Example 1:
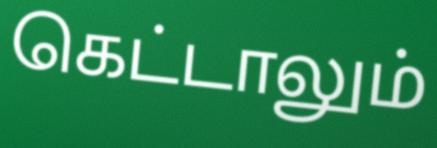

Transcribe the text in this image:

கெட்டாலும்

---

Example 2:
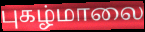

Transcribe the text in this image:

புகழ்மாலை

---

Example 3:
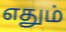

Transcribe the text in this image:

எதும்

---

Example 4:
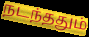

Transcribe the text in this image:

நடந்ததும்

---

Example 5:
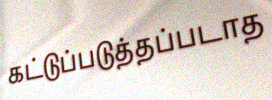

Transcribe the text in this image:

கட்டுப்படுத்தப்படாத